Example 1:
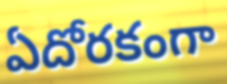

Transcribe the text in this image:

ఏదోరకంగా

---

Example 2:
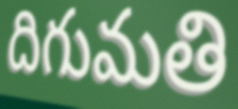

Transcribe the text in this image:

దిగుమతి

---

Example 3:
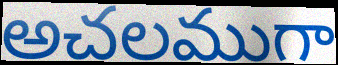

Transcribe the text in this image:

అచలముగా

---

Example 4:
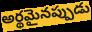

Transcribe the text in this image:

అర్థమైనప్పుడు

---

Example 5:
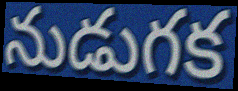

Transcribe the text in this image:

నుడుగక